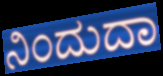
ನಿಂದುದಾ